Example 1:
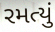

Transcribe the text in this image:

રમત્યું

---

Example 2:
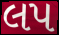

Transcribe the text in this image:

લપ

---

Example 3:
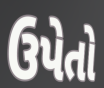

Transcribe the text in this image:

ઉપેતો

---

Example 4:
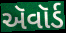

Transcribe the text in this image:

ઍવૉર્ડ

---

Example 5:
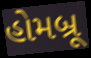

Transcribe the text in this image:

હોમબ્રૂ